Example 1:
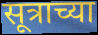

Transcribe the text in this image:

सूत्राच्या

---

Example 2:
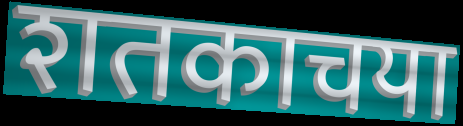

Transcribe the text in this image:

शतकाचया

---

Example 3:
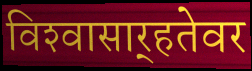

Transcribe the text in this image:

विश्वासार्हतेवर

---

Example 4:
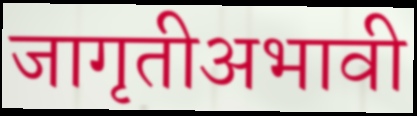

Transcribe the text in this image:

जागृतीअभावी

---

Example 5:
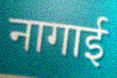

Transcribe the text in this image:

नागाई